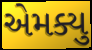
એમક્યુ